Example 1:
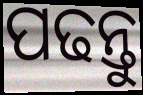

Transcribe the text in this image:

ପଢନ୍ତୁ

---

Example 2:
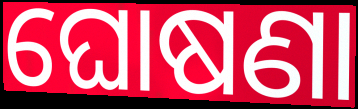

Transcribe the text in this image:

ଘୋଷଣା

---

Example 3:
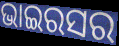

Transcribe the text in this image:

ଭାଇରସର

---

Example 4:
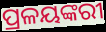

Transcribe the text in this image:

ପ୍ରଳୟଙ୍କରୀ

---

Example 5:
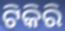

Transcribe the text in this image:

ଟିକିରି